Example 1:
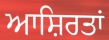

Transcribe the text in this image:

ਆਸ਼ਿਰਤਾਂ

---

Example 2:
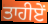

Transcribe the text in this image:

ਤਾਹੀਏਂ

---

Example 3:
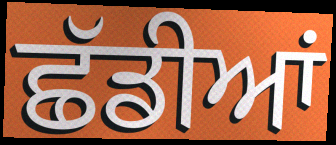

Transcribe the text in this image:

ਛੱਡੀਆਂ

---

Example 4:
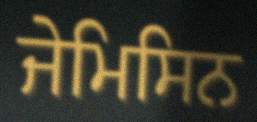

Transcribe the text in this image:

ਜੇਮਿਸਿਨ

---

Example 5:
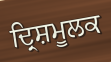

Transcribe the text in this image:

ਦ੍ਰਿਸ਼ਮੂਲਕ